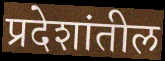
प्रदेशांतील